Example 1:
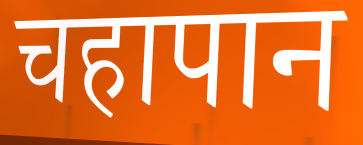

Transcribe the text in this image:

चहापान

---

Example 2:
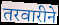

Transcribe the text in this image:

तरवारीने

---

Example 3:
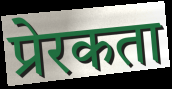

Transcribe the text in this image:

प्रेरकता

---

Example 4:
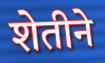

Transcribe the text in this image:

शेतीने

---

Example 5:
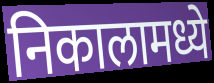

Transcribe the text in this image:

निकालामध्ये